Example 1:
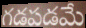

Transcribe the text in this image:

గడపడమే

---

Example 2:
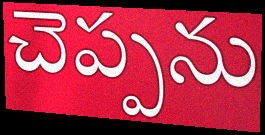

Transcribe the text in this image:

చెప్పను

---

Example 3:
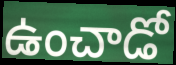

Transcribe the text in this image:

ఉంచాడో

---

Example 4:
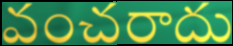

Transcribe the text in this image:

వంచరాదు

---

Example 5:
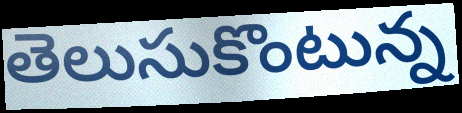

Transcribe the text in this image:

తెలుసుకొంటున్న